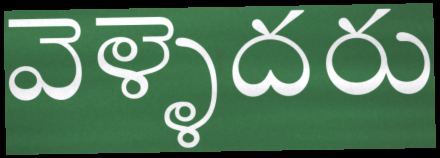
వెళ్ళెదరు